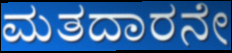
ಮತದಾರನೇ